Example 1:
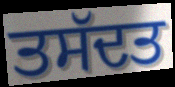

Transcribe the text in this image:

ਤਸੱਦਤ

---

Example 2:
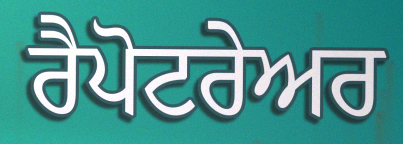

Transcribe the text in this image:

ਰੈਪੋਟਰੇਅਰ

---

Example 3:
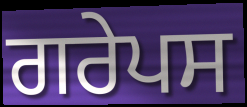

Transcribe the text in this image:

ਗਰੇਪਸ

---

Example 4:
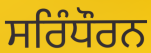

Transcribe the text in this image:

ਸਰਿੰਧੌਰਨ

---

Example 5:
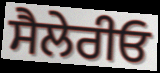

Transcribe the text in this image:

ਸੈਲੇਰੀਓ